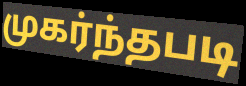
முகர்ந்தபடி